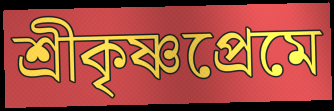
শ্রীকৃষ্ণপ্রেমে